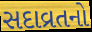
સદાવ્રતનો